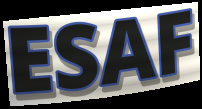
ESAF